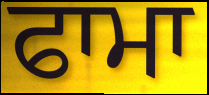
ਫਾਮਾ